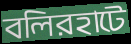
বলিরহাটে